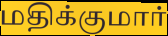
மதிக்குமார்